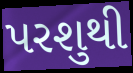
પરશુથી